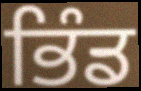
ਭਿੰਡ